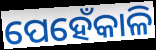
ପେହେଁକାଳି